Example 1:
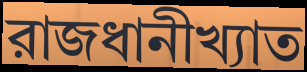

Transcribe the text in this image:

রাজধানীখ্যাত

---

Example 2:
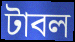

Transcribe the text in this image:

টাবল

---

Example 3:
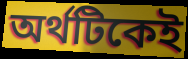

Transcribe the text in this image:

অর্থটিকেই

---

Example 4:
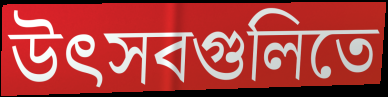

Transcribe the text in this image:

উৎসবগুলিতে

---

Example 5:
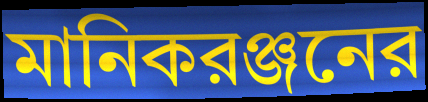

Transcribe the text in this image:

মানিকরঞ্জনের